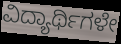
ವಿದ್ಯಾರ್ಥಿಗಳೇ